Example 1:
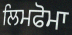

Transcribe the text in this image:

ਲਿਮਫੋਮਾ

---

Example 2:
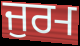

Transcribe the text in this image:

ਜੁਰ੍ਮ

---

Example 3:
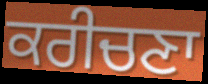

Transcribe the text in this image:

ਕਰੀਚਣਾ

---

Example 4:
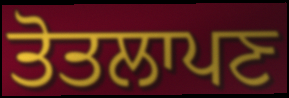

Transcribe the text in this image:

ਤੋਤਲਾਪਣ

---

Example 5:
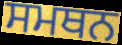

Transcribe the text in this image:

ਸਮਥਨ